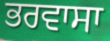
ਭਰਵਾਸਾ